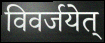
विवर्जयेत्